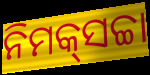
ନିମକ୍‍ସଚ୍ଚା